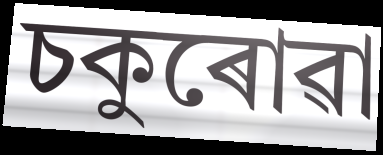
চকুৰোৱা